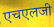
एचएलजी